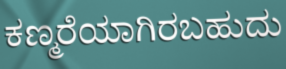
ಕಣ್ಮರೆಯಾಗಿರಬಹುದು